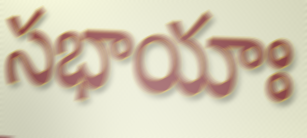
సభాయాః